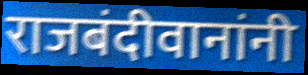
राजबंदीवानांनी